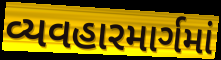
વ્યવહારમાર્ગમાં